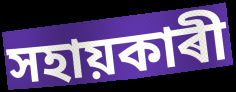
সহায়কাৰী